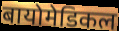
बायोमेडिकल